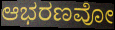
ಆಭರಣವೋ